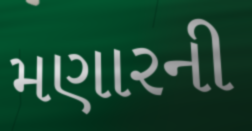
મણારની